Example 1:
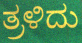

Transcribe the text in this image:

ತ್ರಳಿದು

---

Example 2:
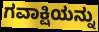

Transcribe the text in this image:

ಗವಾಕ್ಷಿಯನ್ನು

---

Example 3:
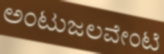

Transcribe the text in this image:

ಅಂಟುಜಲವೇಂಟೆ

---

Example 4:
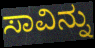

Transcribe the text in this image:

ಸಾವಿನ್ನು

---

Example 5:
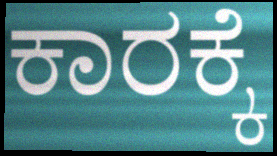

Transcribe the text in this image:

ಕಾರಕ್ಕೆ